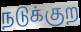
நடுக்குற